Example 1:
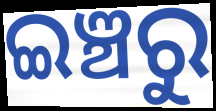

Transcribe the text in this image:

ଇଞ୍ଚରୁ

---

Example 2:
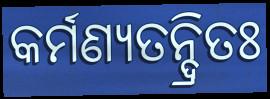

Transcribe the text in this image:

କର୍ମଣ୍ୟତନ୍ଦ୍ରିତଃ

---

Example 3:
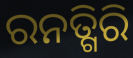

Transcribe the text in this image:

ରନତ୍ଗିରି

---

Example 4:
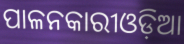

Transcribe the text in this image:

ପାଳନକାରୀଓଡ଼ିଆ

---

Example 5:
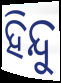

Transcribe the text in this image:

ହିନ୍ଦୁ